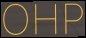
OHP